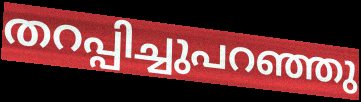
തറപ്പിച്ചുപറഞ്ഞു